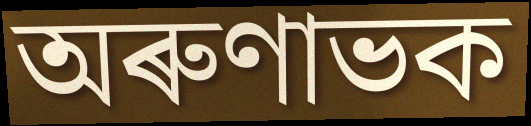
অৰুণাভক